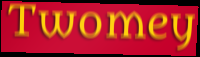
Twomey